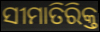
ସୀମାତିରିକ୍ତ